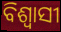
ବିଶ୍ୱାସୀ